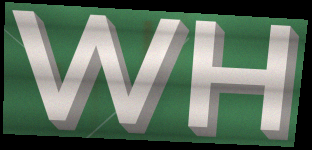
WH